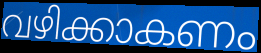
വഴിക്കാകണം